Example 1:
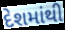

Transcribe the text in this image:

દેશમાંથી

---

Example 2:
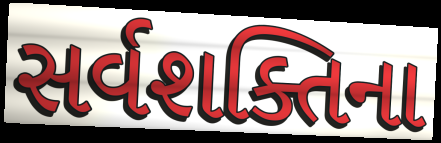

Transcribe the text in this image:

સર્વશક્તિના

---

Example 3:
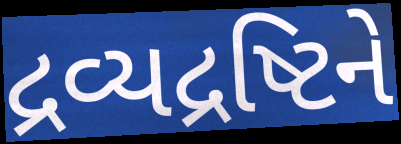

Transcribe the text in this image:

દ્રવ્યદ્રષ્ટિને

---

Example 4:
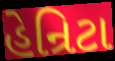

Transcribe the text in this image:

હેન્રિટા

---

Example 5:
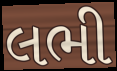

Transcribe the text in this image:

લભી